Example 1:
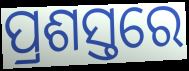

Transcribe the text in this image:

ପ୍ରଶସ୍ତରେ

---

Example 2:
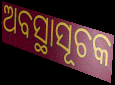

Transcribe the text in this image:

ଅବସ୍ଥାସୂଚକ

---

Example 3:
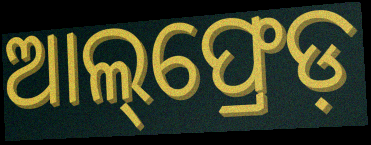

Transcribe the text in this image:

ଆଲ୍‌ଫ୍ରେଡ଼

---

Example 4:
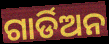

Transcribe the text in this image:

ଗାର୍ଡିଅନ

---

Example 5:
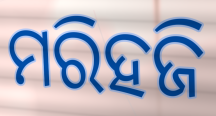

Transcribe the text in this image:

ମରିହଜି